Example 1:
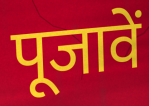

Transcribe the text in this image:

पूजावें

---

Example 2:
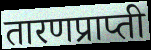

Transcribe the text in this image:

तारणप्राप्ती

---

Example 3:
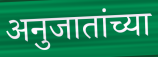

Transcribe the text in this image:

अनुजातांच्या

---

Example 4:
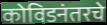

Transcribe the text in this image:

कोविडनंतरचे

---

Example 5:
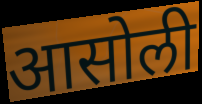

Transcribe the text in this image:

आसोली